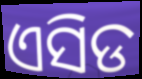
ଏସିଡ